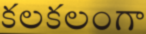
కలకలంగా